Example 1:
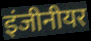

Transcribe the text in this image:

इंजीनीयर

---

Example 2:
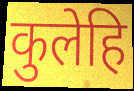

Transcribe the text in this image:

कुलेहि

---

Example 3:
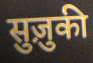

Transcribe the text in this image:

सुज़ुकी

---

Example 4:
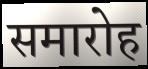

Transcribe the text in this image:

समारोह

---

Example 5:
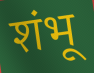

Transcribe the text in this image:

शंभू